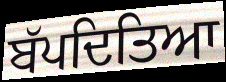
ਬੱਪਦਿਤਿਆ